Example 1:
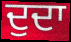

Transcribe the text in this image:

ਦੁਦਾ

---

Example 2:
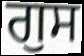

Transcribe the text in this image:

ਗੁਸ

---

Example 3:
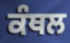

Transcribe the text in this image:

ਕੰਥਲ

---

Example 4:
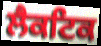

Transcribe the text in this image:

ਲੈਕਟਿਕ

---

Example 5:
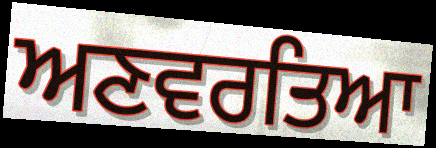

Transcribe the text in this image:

ਅਣਵਰਤਿਆ